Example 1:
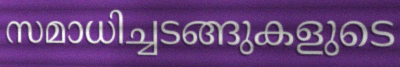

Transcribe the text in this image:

സമാധിച്ചടങ്ങുകളുടെ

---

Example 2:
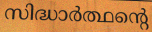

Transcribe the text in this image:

സിദ്ധാർത്ഥന്റെ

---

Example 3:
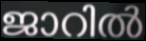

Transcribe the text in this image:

ജാറിൽ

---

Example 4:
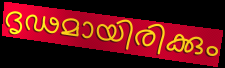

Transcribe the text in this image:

ദൃഢമായിരിക്കും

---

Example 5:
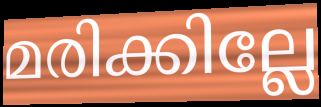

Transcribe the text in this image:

മരിക്കില്ലേ